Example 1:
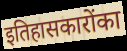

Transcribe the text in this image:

इतिहासकारोंका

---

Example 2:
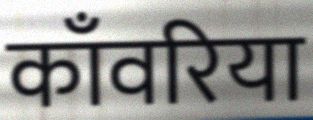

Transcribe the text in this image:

काँवरिया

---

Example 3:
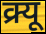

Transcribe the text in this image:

क्र्यू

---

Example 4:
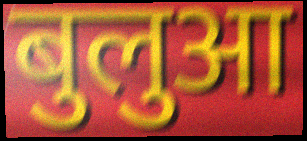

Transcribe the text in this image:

बुलुआ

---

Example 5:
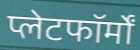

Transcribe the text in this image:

प्लेटफॉर्मों